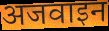
अजवाइन